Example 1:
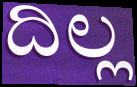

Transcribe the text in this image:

ದಿಲ್ಲ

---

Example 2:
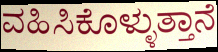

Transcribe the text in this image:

ವಹಿಸಿಕೊಳ್ಳುತ್ತಾನೆ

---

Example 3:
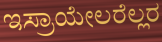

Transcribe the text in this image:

ಇಸ್ರಾಯೇಲರೆಲ್ಲರ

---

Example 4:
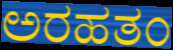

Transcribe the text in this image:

ಅರಹತಂ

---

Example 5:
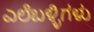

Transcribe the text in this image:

ಎಲೆಬಳ್ಳಿಗಳು